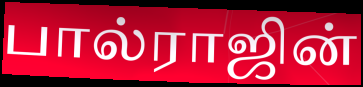
பால்ராஜின்